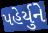
પહેર્યુને